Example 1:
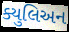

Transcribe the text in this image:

ક્યુલિઅન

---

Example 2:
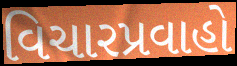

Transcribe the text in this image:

વિચારપ્રવાહો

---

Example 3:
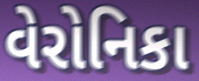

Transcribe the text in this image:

વેરોનિકા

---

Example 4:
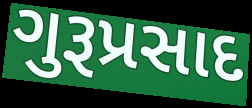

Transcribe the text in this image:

ગુરૂપ્રસાદ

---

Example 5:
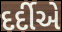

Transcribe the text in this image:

દર્દીએ